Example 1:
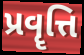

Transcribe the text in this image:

પ્રવૄત્તિ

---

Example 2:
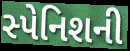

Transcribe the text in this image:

સ્પેનિશની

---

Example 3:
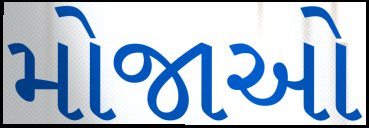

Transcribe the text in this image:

મોજાઓ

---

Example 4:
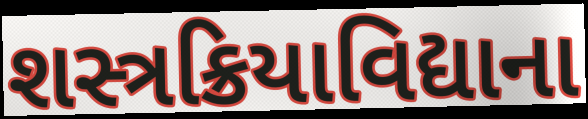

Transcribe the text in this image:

શસ્ત્રક્રિયાવિદ્યાના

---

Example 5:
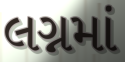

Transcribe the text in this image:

લગ્નમાં